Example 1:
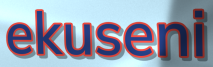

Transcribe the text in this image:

ekuseni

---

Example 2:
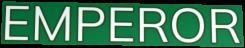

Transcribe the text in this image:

EMPEROR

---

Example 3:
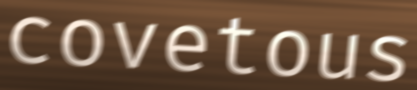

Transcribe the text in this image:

covetous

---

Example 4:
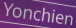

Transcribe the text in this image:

Yonchien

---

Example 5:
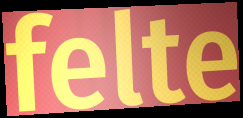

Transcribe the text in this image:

felte